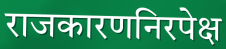
राजकारणनिरपेक्ष